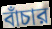
বাঁচার